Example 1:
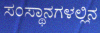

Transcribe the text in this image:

ಸಂಸ್ಥಾನಗಳಲ್ಲಿನ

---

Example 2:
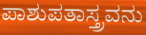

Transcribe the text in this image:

ಪಾಶುಪತಾಸ್ತ್ರವನು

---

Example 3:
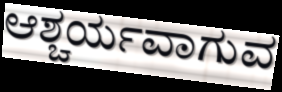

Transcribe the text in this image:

ಆಶ್ಚರ್ಯವಾಗುವ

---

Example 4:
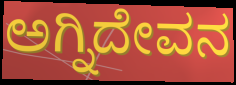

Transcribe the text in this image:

ಅಗ್ನಿದೇವನ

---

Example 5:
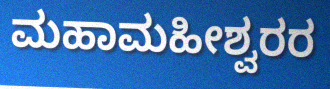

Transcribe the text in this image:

ಮಹಾಮಹೀಶ್ವರರ